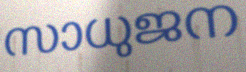
സാധുജന